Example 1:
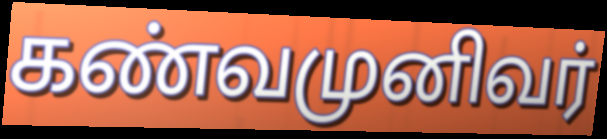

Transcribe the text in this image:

கண்வமுனிவர்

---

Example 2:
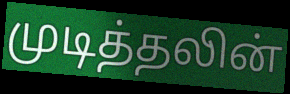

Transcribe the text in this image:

முடித்தலின்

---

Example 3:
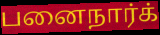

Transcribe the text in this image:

பனைநார்க்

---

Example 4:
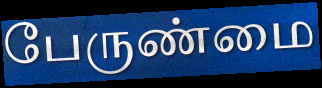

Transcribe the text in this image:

பேருண்மை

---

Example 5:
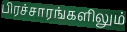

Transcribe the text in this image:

பிரச்சாரங்களிலும்